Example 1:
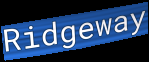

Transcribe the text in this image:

Ridgeway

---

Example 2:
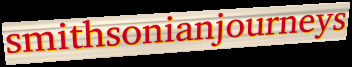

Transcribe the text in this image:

smithsonianjourneys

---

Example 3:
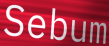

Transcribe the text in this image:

Sebum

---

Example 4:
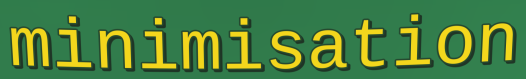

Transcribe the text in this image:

minimisation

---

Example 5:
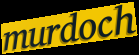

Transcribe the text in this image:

murdoch